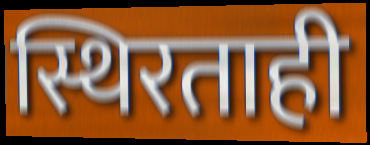
स्थिरताही